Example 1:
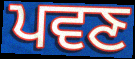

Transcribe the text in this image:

ਪਵਣ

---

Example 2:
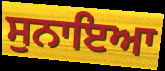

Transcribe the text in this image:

ਸੁਨਾਇਆ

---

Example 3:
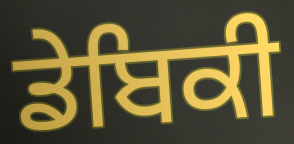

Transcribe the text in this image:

ਡੇਬਿਕੀ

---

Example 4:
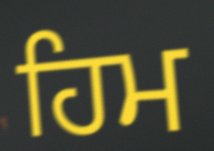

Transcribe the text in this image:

ਹਿਮ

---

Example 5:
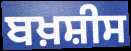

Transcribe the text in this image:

ਬਖ਼ਸ਼ੀਸ